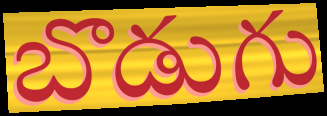
బొడుగు